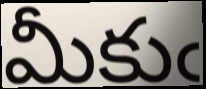
మీకుఁ